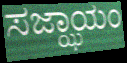
ಸಜ್ಝಾಯಂ